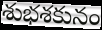
శుభశకునం